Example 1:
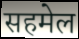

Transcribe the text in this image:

सहमेल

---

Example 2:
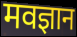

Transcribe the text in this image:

मवज्ञान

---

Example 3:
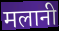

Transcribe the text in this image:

मलानी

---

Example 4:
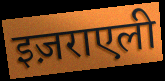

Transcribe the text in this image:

इज़राएली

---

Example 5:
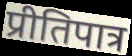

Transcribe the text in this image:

प्रीतिपात्र